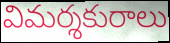
విమర్శకురాలు